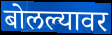
बोलल्यावर